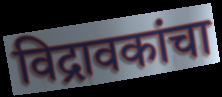
विद्रावकांचा